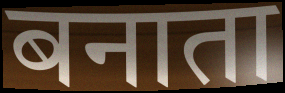
बनाता